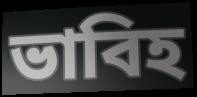
ভাবিহ